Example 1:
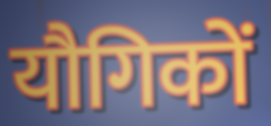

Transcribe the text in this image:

यौगिकों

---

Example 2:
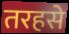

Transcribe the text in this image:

तरहसे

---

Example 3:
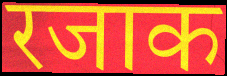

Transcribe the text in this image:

रजाक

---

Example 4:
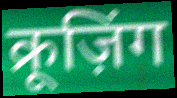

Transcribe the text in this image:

क्रूज़िंग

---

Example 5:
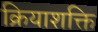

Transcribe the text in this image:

क्रियाशक्ति